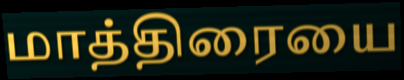
மாத்திரையை